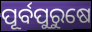
ପୂର୍ବପୁରୁଷେ